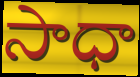
సాధా